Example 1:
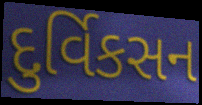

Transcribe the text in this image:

દુર્વિકસન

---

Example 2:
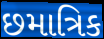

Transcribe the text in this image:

છમાત્રિક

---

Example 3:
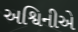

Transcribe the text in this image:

અશ્વિનીએ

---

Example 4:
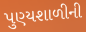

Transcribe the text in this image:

પુણ્યશાળીની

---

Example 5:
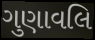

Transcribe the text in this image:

ગુણાવલિ